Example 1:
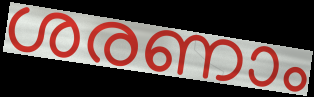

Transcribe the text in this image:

ശരണാം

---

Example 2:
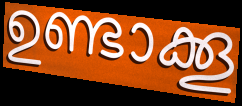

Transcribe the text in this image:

ഉണ്ടാക്കൂ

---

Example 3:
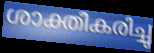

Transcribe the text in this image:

ശാക്തീകരിച്ചു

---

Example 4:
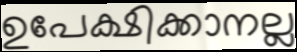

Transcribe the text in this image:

ഉപേക്ഷിക്കാനല്ല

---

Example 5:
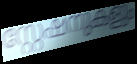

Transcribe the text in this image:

സ്റ്റേഷനുകളും